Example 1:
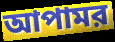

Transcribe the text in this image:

আপামর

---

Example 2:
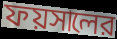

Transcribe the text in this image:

ফয়সালের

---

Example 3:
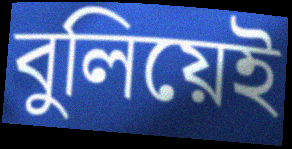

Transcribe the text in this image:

বুলিয়েই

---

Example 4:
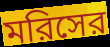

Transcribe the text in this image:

মরিসের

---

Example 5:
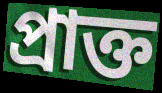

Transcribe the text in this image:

প্রাক্ত